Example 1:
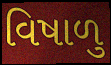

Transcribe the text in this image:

વિષાળુ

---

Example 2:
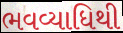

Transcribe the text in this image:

ભવવ્યાધિથી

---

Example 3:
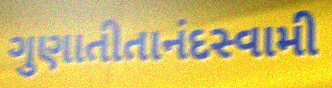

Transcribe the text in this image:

ગુણાતીતાનંદસ્વામી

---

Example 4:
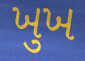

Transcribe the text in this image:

ખુખ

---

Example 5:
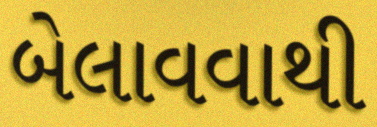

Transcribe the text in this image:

બેલાવવાથી